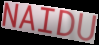
NAIDU